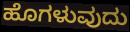
ಹೊಗಳುವುದು